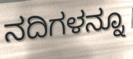
ನದಿಗಳನ್ನೂ